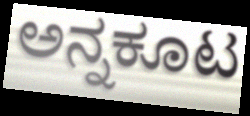
ಅನ್ನಕೂಟ